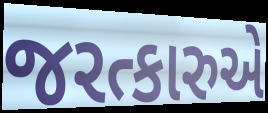
જરત્કારુએ